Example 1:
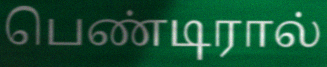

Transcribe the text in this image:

பெண்டிரால்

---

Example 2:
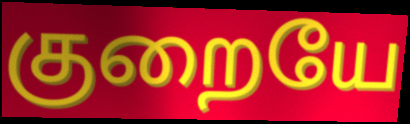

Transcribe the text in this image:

குறையே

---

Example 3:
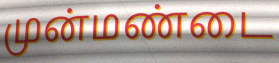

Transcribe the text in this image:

முன்மண்டை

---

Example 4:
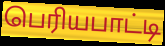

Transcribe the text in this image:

பெரியபாட்டி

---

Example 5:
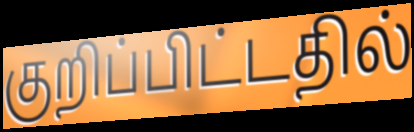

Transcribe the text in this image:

குறிப்பிட்டதில்